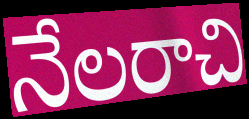
నేలరాచి